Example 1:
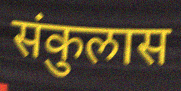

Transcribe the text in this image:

संकुलास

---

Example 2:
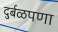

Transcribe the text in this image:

दुर्बळपणा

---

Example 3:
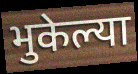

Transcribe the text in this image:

भुकेल्या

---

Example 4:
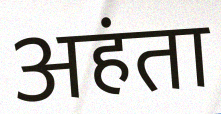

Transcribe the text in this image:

अहंता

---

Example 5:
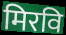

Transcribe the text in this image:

मिरवि